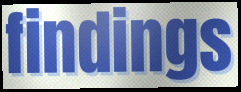
findings